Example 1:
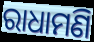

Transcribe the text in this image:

ରାଧାମଣି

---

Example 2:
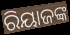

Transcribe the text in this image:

ରିୟାଜଙ୍କ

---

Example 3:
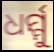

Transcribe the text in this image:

ଧର୍ମ୍ମୁ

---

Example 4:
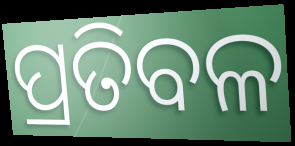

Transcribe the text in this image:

ପ୍ରତିବଳ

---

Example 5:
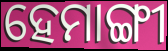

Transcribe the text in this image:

ହେମାଙ୍ଗୀ